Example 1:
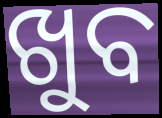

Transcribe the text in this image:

ଖୁବ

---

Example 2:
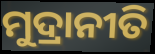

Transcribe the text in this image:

ମୁଦ୍ରାନୀତି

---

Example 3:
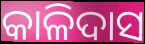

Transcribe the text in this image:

କାଳିଦାସ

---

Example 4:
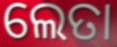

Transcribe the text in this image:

ଲେତା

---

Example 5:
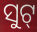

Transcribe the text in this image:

ସୁଟ୍